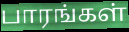
பாரங்கள்